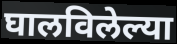
घालविलेल्या